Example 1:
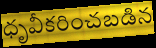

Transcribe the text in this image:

ధృవీకరించబడిన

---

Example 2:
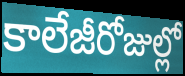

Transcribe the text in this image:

కాలేజీరోజుల్లో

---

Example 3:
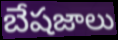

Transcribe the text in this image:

బేషజాలు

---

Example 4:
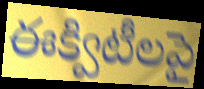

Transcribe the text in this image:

ఈక్విటీలపై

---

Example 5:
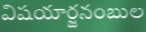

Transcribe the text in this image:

విషయార్జనంబుల